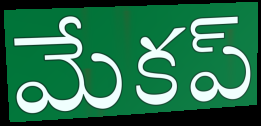
మేకప్